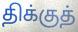
திக்குத்